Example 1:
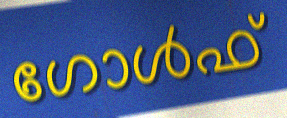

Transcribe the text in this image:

ഗോൾഫ്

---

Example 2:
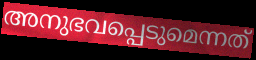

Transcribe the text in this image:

അനുഭവപ്പെടുമെന്നത്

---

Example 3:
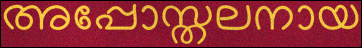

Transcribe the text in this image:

അപ്പോസ്തലനായ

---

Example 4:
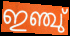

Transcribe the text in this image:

ഇഞ്ചു്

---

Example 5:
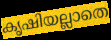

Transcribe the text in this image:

കൃഷിയല്ലാതെ